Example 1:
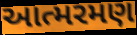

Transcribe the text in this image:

આત્મરમણ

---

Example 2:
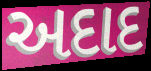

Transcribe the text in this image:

અદાદ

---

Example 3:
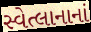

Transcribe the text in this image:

સ્વેત્લાનાનાં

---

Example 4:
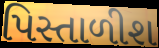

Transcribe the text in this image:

પિસ્તાળીશ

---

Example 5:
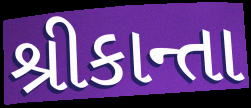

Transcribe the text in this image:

શ્રીકાન્તા